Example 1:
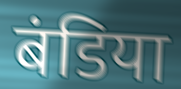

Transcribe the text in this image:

बंडिया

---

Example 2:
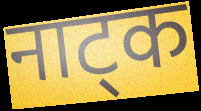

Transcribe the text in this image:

नाट्क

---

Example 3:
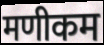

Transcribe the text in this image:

मणीकम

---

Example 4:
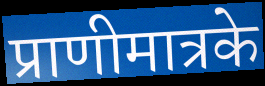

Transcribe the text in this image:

प्राणीमात्रके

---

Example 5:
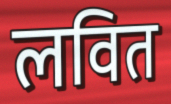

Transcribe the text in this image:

लवित